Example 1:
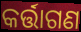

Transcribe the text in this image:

କର୍ତ୍ତାଗଣ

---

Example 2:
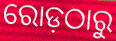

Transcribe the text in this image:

ରୋଡ଼ଠାରୁ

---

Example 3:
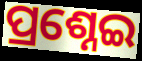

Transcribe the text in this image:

ପ୍ରଶ୍ନେଇ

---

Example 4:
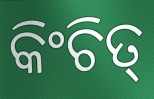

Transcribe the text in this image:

କିଂଚିତ୍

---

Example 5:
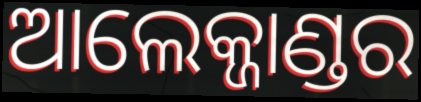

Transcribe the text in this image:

ଆଲେକ୍ଜାଣ୍ଡର